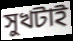
সুখটাই